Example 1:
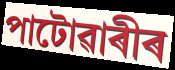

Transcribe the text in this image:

পাটোৱাৰীৰ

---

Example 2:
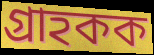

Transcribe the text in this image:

গ্ৰাহকক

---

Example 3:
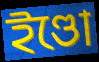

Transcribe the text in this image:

ইণ্ডো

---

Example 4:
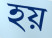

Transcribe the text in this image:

হয়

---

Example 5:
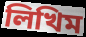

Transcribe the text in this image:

লিখিম